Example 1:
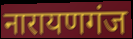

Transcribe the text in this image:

नारायणगंज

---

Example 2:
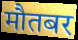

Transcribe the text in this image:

मौतबर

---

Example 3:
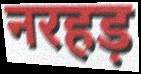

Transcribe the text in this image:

नरहड़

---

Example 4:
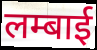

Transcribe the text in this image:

लम्बाई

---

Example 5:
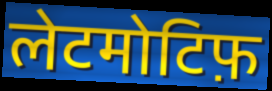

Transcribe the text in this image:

लेटमोटिफ़